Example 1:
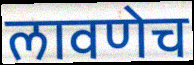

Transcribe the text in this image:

लावणेच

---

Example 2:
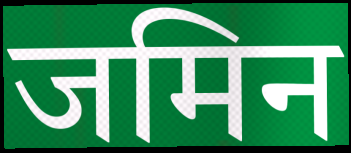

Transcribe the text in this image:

जमिन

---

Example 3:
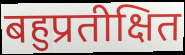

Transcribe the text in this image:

बहुप्रतीक्षित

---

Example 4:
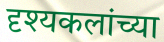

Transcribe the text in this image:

दृश्यकलांच्या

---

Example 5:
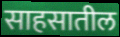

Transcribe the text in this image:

साहसातील